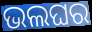
ଭଲଘର